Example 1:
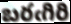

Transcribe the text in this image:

బరఁగిరి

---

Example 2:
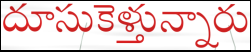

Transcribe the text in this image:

దూసుకెళ్తున్నారు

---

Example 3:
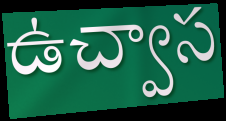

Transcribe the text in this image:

ఉచ్వాస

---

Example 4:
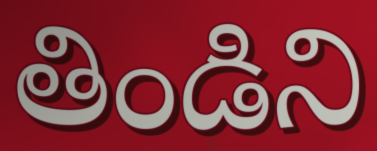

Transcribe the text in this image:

తిండిని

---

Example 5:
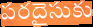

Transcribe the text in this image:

పరదైసుకు